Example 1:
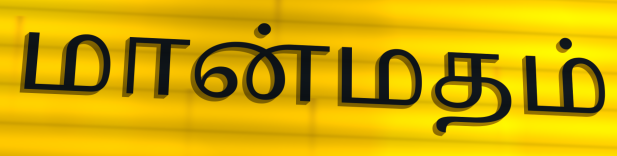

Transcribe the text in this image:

மான்மதம்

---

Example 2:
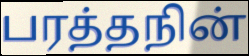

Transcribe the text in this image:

பரத்தநின்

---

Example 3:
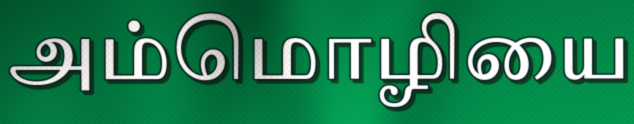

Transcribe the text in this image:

அம்மொழியை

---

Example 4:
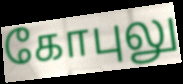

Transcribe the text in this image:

கோபுலு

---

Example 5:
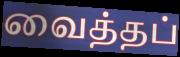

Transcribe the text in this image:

வைத்தப்